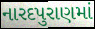
નારદપુરાણમાં